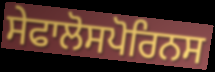
ਸੇਫਾਲੋਸਪੋਰਿਨਸ